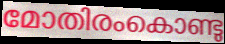
മോതിരംകൊണ്ടു